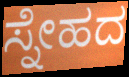
ಸ್ನೇಹದ